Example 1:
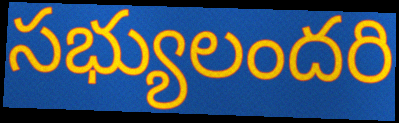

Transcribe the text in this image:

సభ్యులందరి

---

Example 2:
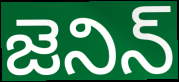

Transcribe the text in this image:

జెనిన్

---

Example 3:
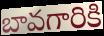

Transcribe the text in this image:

బావగారికి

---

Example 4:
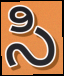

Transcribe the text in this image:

సి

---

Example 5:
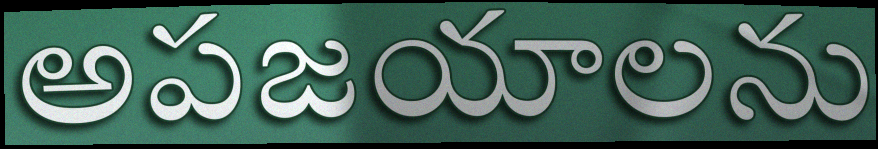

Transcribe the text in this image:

అపజయాలను